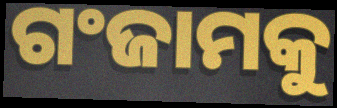
ଗଂଜାମକୁ